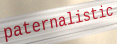
paternalistic